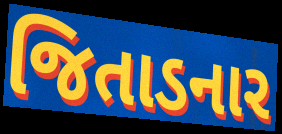
જિતાડનાર